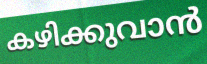
കഴിക്കുവാൻ